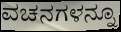
ವಚನಗಳನ್ನೂ